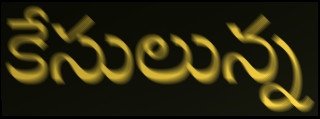
కేసులున్న